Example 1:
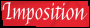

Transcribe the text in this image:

Imposition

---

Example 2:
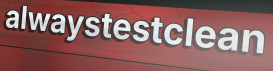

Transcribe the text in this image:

alwaystestclean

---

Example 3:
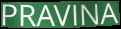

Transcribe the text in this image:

PRAVINA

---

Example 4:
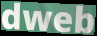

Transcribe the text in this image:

dweb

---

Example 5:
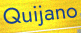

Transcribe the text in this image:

Quijano